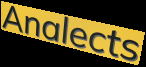
Analects